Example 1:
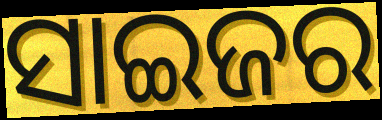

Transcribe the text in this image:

ସାଇଜର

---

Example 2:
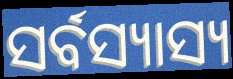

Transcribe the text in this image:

ସର୍ବସ୍ୟାସ୍ୟ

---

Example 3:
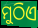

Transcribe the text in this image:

ମୁଠିଏ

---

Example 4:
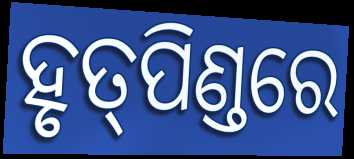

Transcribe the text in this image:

ହୃତ୍‌ପିଣ୍ଡରେ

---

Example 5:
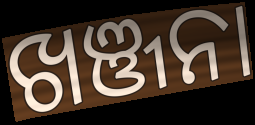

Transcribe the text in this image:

ଖଞ୍ଜନା